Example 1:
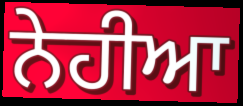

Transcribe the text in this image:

ਨੇਹੀਆ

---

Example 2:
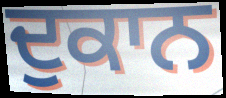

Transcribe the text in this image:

ਦੁਕਾਨ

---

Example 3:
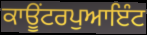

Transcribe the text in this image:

ਕਾਊਂਟਰਪੁਆਇੰਟ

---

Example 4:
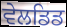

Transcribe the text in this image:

ਵੇਲਡਿਡ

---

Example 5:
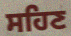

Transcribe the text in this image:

ਸਹਿਣ